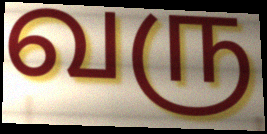
வரு